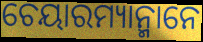
ଚେୟାରମ୍ୟାନ୍ମାନେ